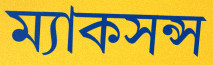
ম্যাকসন্স